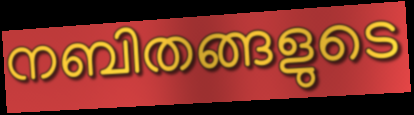
നബിതങ്ങളുടെ